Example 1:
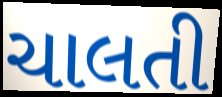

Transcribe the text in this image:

ચાલતી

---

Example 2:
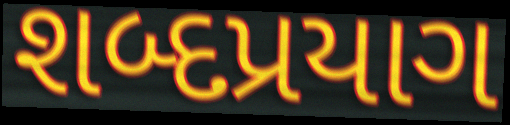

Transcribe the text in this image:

શબ્દપ્રયાગ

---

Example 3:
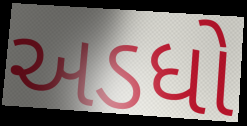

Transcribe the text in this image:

અડધો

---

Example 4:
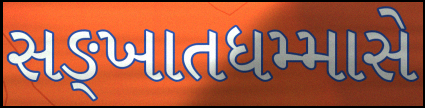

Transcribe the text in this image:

સઙ્ખાતધમ્માસે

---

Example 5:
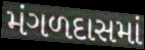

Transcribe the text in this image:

મંગળદાસમાં